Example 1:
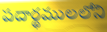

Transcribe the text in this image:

పదార్థములలోని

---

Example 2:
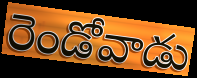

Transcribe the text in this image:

రెండోవాడు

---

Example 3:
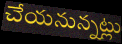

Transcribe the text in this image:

చేయనున్నట్లు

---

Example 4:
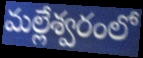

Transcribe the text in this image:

మల్లేశ్వరంలో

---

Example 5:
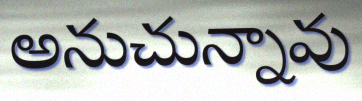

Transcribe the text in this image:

అనుచున్నావు